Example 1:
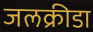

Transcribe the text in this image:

जलक्रीडा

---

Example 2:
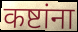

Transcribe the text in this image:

कष्टांना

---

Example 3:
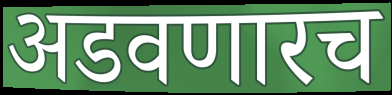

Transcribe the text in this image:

अडवणारच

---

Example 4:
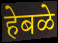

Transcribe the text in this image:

हेबळे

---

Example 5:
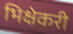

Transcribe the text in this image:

भिक्षेकरी